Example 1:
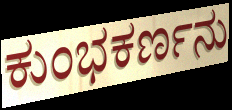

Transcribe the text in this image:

ಕುಂಭಕರ್ಣನು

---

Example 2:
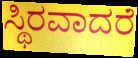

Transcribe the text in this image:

ಸ್ಥಿರವಾದರೆ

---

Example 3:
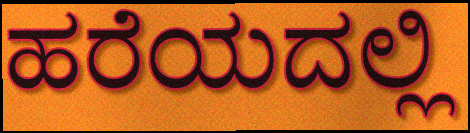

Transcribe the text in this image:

ಹರೆಯದಲ್ಲಿ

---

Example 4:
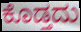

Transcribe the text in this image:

ಕೊಡ್ತದು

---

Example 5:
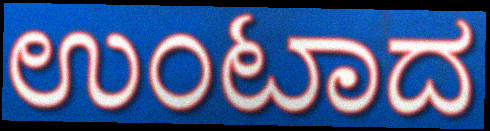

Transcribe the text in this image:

ಉಂಟಾದ